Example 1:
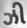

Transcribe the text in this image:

ઝી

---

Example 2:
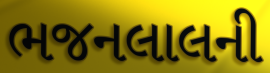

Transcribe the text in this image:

ભજનલાલની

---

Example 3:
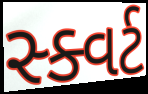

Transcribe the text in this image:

સ્ક્વર્ટ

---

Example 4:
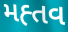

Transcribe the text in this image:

મહ્તવ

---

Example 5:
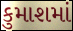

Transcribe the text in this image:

કુમાશમાં